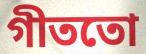
গীততো